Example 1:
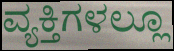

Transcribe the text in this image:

ವ್ಯಕ್ತಿಗಳಲ್ಲೂ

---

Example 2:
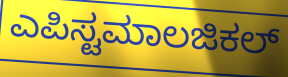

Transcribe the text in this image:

ಎಪಿಸ್ಟಮಾಲಜಿಕಲ್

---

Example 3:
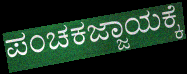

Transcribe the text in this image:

ಪಂಚಕಜ್ಜಾಯಕ್ಕೆ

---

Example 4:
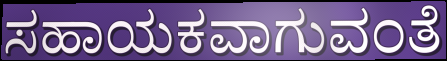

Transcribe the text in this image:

ಸಹಾಯಕವಾಗುವಂತೆ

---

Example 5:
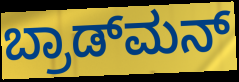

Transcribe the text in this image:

ಬ್ರಾಡ್‌ಮನ್